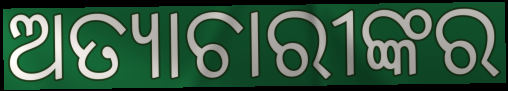
ଅତ୍ୟାଚାରୀଙ୍କର